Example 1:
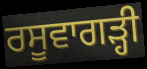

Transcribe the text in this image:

ਰਸੂਵਾਗੜ੍ਹੀ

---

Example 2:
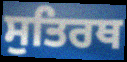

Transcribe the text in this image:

ਸੁਤਿਰਥ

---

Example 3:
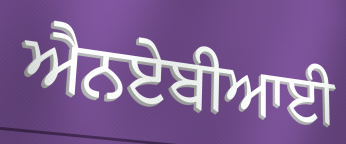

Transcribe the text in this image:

ਐਨਏਬੀਆਈ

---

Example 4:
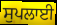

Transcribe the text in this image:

ਸੁਪਲਾਈ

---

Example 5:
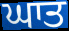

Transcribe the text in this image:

ਘਾਤ